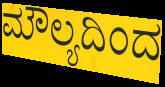
ಮೌಲ್ಯದಿಂದ